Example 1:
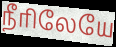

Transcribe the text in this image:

நீரிலேயே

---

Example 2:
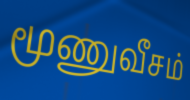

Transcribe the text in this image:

மூணுவீசம்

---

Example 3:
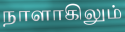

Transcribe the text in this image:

நாளாகிலும்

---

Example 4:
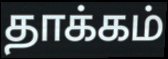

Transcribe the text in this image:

தாக்கம்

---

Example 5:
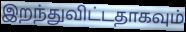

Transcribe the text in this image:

இறந்துவிட்டதாகவும்